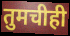
तुमचीही